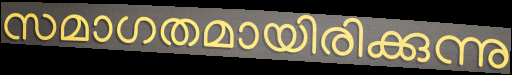
സമാഗതമായിരിക്കുന്നു